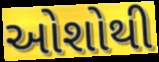
ઓશોથી